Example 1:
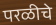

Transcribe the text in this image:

परळीचे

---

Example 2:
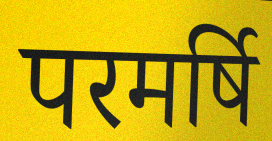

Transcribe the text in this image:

परमर्षि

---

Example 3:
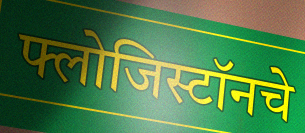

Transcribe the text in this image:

फ्लोजिस्टॉनचे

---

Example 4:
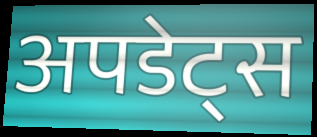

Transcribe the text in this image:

अपडेट्स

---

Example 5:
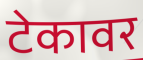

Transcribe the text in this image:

टेकावर